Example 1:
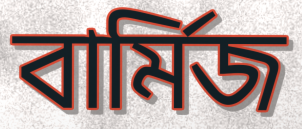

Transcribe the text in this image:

বাৰ্মিজ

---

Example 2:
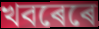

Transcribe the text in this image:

খবৰেৰে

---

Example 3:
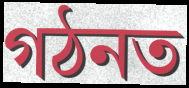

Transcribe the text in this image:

গঠনত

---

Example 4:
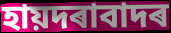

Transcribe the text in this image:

হায়দৰাবাদৰ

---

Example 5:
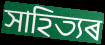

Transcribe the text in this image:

সাহিত্যৰ